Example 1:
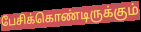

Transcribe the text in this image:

பேசிக்கொண்டிருக்கும்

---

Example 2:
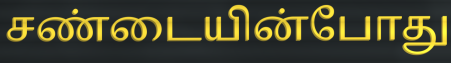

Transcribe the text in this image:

சண்டையின்போது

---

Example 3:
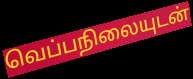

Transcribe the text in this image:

வெப்பநிலையுடன்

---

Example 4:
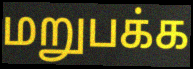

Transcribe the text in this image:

மறுபக்க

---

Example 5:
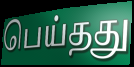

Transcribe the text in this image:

பெய்தது